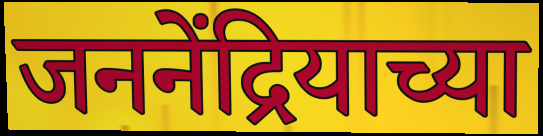
जननेंद्रियाच्या